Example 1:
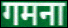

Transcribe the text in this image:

गमना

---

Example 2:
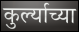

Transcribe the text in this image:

कुर्ल्याच्या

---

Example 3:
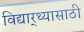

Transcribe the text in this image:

विद्यार्थ्यासाठी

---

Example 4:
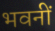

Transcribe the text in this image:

भवनीं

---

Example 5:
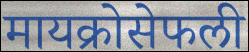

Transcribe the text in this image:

मायक्रोसेफली